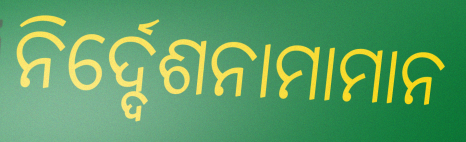
ନିର୍ଦ୍ଦେଶନାମାମାନ